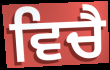
ਵਿਚੈ